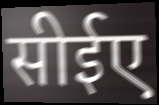
सीईए